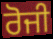
ਰੋਜੀ